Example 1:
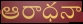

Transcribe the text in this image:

ఆరాధనా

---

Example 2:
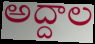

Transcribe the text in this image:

అద్దాల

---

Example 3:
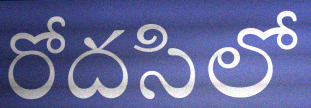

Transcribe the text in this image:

రోదసిలో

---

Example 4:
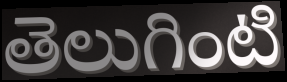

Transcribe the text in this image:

తెలుగింటి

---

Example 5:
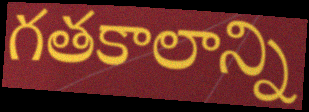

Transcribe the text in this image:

గతకాలాన్ని